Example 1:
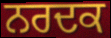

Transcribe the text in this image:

ਨਰਦਕ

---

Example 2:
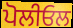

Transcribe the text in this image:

ਪੋਲੀਓਲ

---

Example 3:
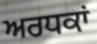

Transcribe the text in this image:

ਅਰਧਕਾਂ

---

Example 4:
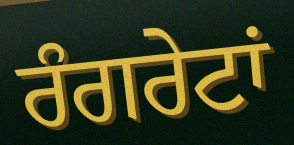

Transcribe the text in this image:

ਰੰਗਰੇਟਾਂ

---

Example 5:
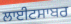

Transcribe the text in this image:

ਲਾਈਟਸਾਬਰ